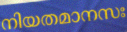
നിയതമാനസഃ